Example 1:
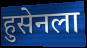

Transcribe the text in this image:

हुसेनला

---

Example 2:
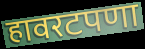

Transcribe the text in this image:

हावरटपणा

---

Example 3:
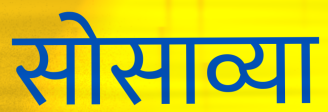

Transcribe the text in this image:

सोसाव्या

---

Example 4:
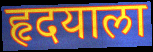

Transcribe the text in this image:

हृदयाला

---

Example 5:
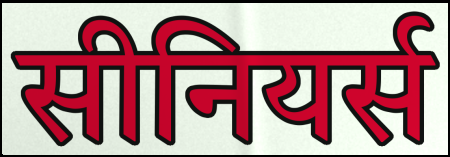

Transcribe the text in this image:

सीनियर्स